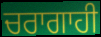
ਚਰਾਗਾਹੀ